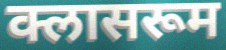
क्लासरूम